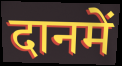
दानमें